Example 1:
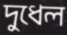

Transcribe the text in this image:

দুধেল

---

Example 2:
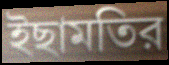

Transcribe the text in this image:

ইছামতির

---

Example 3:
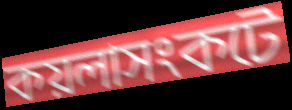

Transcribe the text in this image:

কয়লাসংকটে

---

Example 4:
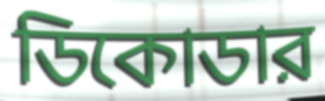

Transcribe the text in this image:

ডিকোডার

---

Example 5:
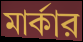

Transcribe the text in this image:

মার্কার